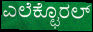
ಎಲೆಕ್ಟೊರಲ್